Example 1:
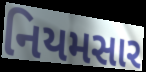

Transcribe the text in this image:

નિયમસાર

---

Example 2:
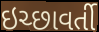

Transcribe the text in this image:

ઇચ્છાવર્તી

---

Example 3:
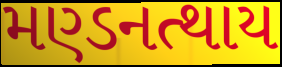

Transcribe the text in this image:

મણ્ડનત્થાય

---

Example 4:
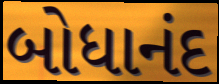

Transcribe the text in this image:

બોધાનંદ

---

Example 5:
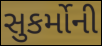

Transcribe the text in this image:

સુકર્મોની